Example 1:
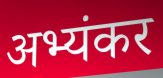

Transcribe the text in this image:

अभ्यंकर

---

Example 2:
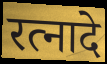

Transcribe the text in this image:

रत्नादे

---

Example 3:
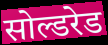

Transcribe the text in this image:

सोल्डरेड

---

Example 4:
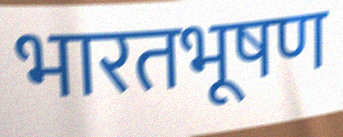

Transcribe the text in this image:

भारतभूषण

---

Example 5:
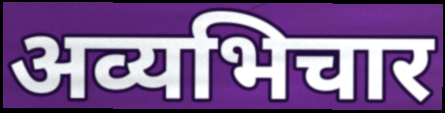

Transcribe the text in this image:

अव्यभिचार